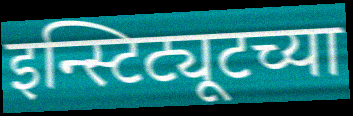
इन्स्टिट्यूटच्या